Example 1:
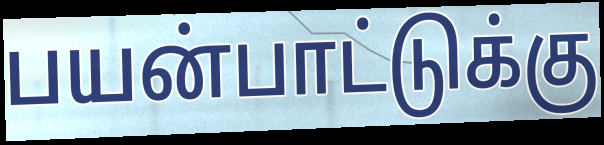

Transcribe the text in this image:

பயன்பாட்டுக்கு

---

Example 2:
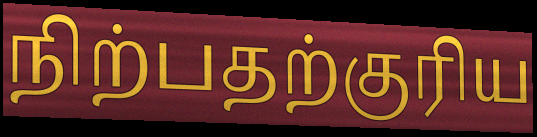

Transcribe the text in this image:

நிற்பதற்குரிய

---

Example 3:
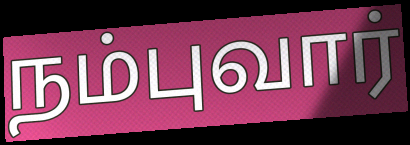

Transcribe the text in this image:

நம்புவார்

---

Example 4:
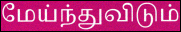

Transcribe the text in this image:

மேய்ந்துவிடும்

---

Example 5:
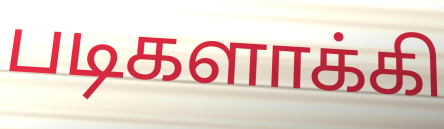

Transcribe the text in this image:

படிகளாக்கி